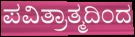
ಪವಿತ್ರಾತ್ಮದಿಂದ